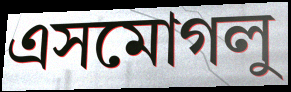
এসমোগলু